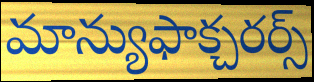
మాన్యుఫాక్చరర్స్